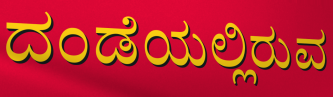
ದಂಡೆಯಲ್ಲಿರುವ